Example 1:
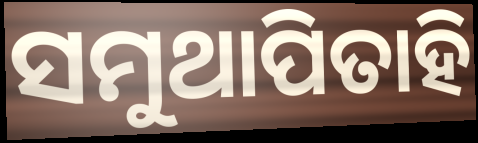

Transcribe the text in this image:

ସମୁଥାପିତାହି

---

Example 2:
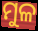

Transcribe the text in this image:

ମୁଳ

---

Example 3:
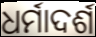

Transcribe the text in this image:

ଧର୍ମାଦର୍ଶ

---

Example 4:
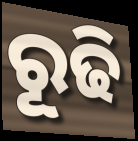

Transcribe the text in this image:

ରୂଢି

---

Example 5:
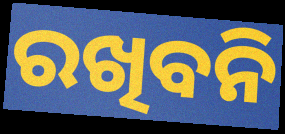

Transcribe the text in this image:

ରଖିବନି